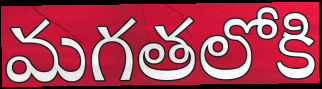
మగతలోకి